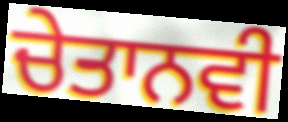
ਚੇਤਾਨਵੀ